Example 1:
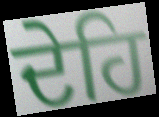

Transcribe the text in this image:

ਦੇਹਿ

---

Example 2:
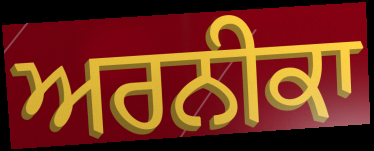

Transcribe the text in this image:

ਅਰਨੀਕਾ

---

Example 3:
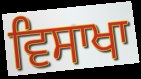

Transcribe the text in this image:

ਵਿਸਾਖਾ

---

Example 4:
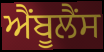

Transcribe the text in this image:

ਐਂਬੂਲੈਂਸ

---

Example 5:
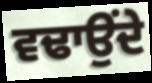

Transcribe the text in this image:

ਵਢਾਉਂਦੇ